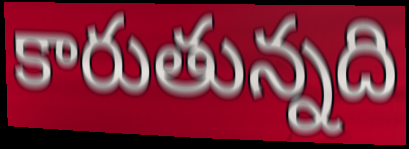
కారుతున్నది